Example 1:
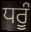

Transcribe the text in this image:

ਧਰੂੰ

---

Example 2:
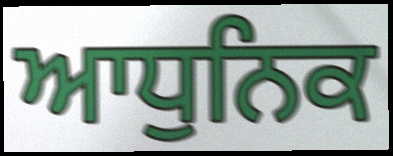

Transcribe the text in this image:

ਆਧੁਨਿਕ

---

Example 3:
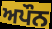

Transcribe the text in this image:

ਅਪੌਨ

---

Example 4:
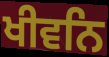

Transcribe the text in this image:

ਖੀਵਨਿ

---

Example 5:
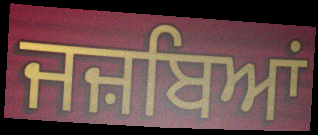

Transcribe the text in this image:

ਜਜ਼ਬਿਆਂ